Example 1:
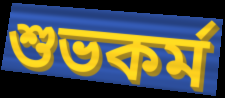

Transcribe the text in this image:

শুভকর্ম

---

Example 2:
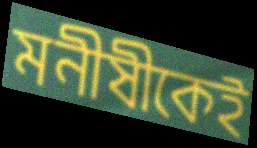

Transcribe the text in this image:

মনীষীকেই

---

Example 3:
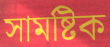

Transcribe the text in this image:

সামষ্টিক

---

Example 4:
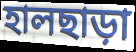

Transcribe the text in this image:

হালছাড়া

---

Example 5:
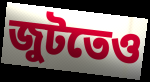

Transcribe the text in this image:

জুটতেও